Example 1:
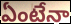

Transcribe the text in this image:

ఏంటేనా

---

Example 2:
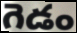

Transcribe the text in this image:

గెడం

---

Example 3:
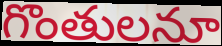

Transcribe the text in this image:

గొంతులనూ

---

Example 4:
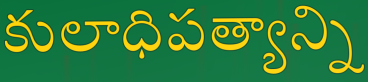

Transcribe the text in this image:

కులాధిపత్యాన్ని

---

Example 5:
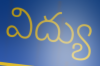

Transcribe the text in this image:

విద్యు